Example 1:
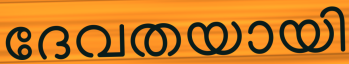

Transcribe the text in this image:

ദേവതയായി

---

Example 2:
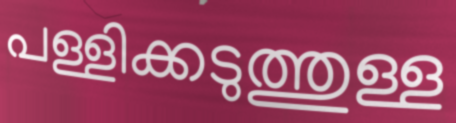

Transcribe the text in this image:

പള്ളിക്കടുത്തുള്ള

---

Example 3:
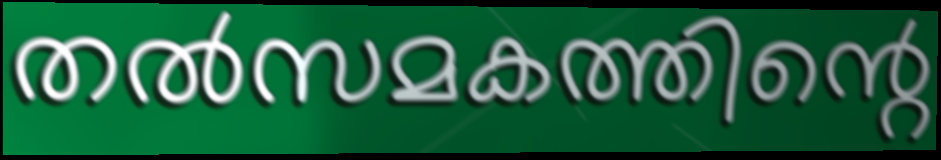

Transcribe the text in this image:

തൽസമകത്തിന്റെ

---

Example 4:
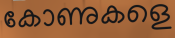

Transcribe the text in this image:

കോണുകളെ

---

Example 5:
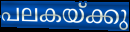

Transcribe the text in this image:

പലകയ്ക്കു